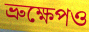
ভ্রুক্ষেপও